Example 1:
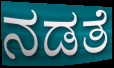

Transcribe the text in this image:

ನಡತೆ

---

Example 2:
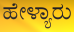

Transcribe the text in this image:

ಹೇಳ್ಯಾರು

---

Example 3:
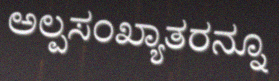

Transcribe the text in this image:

ಅಲ್ಪಸಂಖ್ಯಾತರನ್ನೂ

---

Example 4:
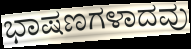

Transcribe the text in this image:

ಭಾಷಣಗಳಾದವು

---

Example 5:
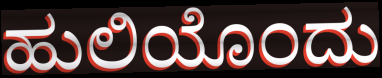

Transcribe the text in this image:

ಹುಲಿಯೊಂದು